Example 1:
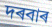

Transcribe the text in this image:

দৰবাৰ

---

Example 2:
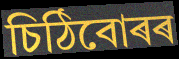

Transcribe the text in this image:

চিঠিবোৰৰ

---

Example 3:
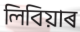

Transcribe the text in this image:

লিবিয়াৰ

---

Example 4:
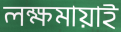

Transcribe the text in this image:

লক্ষমায়াই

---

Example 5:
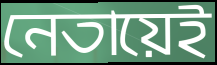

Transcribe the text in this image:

নেতায়েই